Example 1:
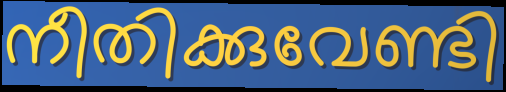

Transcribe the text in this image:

നീതിക്കുവേണ്ടി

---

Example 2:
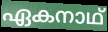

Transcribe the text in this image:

ഏകനാഥ്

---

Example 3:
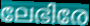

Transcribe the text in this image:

ലേഭിരേ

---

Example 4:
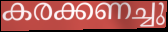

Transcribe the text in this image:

കരക്കണച്ചു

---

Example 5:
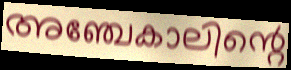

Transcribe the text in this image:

അഞ്ചേകാലിന്റെ